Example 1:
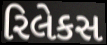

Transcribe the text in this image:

રિલેકસ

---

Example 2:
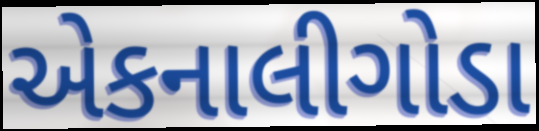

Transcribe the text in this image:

એકનાલીગોડા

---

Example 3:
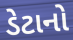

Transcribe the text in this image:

ડેટાનો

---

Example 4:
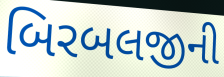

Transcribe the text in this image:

બિરબલજીની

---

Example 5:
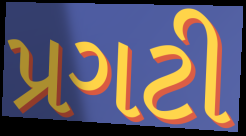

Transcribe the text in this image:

પ્રગટી